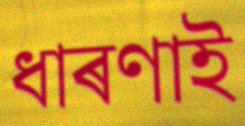
ধাৰণাই